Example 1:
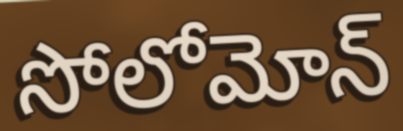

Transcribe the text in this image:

సోలోమోన్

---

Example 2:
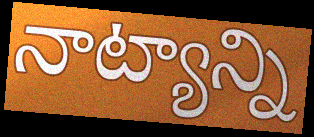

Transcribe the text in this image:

నాట్యాన్ని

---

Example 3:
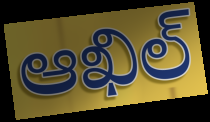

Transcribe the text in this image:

ఆఖిల్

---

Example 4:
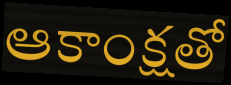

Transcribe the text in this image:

ఆకాంక్షతో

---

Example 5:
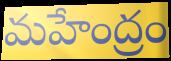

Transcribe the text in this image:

మహేంద్రం